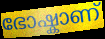
ഭോഷ്കാണ്